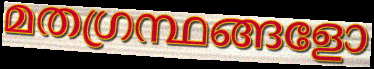
മതഗ്രന്ഥങ്ങളോ